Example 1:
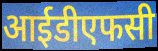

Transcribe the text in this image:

आईडीएफसी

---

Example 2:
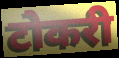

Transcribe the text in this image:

टोकरी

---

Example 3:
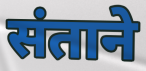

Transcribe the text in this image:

संताने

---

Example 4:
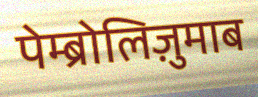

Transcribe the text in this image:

पेम्ब्रोलिज़ुमाब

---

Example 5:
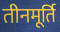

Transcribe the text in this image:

तीनमूर्ति